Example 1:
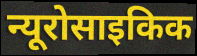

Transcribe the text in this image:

न्यूरोसाइकिक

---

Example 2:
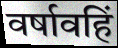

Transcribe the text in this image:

वर्षावहिं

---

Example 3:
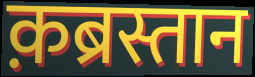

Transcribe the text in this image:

क़ब्रस्तान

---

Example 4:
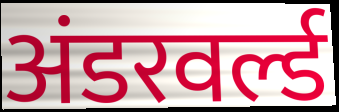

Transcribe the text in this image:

अंडरवर्ल्ड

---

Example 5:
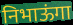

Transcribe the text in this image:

निभाऊंगा